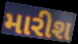
મારીશ